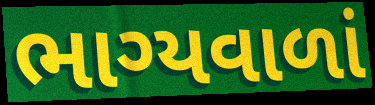
ભાગ્યવાળાં